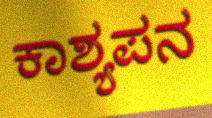
ಕಾಶ್ಯಪನ